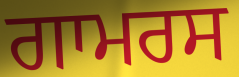
ਗਾਮਰਸ